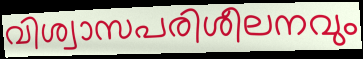
വിശ്വാസപരിശീലനവും